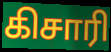
கிசாரி